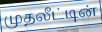
முதலீட்டின்